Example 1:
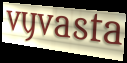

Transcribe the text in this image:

vyvasta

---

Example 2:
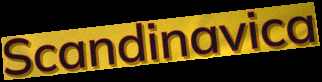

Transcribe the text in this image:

Scandinavica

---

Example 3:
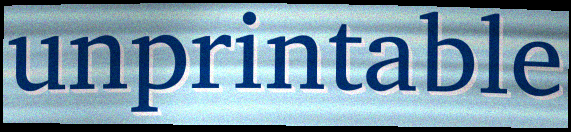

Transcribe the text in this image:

unprintable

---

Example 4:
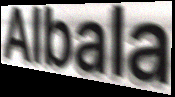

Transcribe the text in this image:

Albala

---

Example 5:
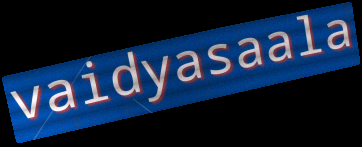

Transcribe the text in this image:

vaidyasaala